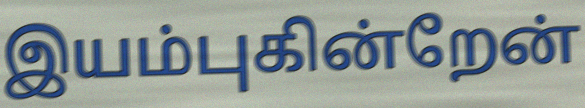
இயம்புகின்றேன்